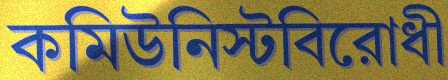
কমিউনিস্টবিরোধী